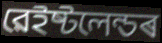
ৱেইষ্টলেন্ডৰ